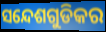
ସନ୍ଦେଶଗୁଡିକର